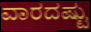
ವಾರದಷ್ಟು